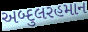
અબ્દુલરહમાન